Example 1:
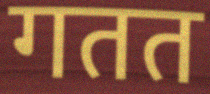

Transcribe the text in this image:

गतत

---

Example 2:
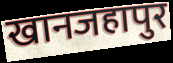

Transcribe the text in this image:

खानजहापुर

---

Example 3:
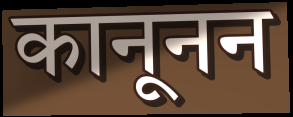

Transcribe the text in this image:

कानूनन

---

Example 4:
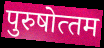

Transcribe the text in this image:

पुरुषोत्‍तम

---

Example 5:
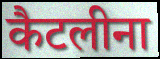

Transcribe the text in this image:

कैटलीना